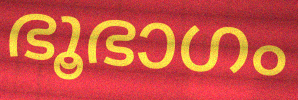
ഭൂഭാഗം